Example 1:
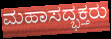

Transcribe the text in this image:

ಮಹಾಸದ್ಭಕ್ತರು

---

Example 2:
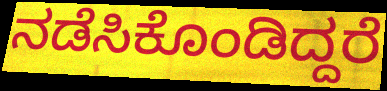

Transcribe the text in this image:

ನಡೆಸಿಕೊಂಡಿದ್ದರೆ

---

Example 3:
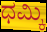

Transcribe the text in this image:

ಧಮ್ಕಿ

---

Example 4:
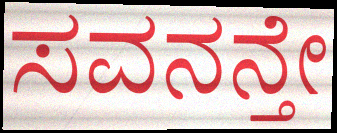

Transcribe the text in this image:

ಸವನನ್ತೇ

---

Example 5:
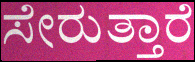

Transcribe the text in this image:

ಸೇರುತ್ತಾರೆ